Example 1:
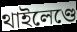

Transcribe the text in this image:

থাইলেণ্ডে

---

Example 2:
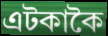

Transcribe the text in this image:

এটকাকৈ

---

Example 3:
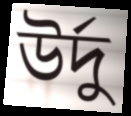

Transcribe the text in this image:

উৰ্দু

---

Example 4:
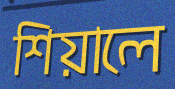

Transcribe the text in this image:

শিয়ালে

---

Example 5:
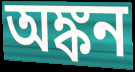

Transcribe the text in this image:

অঙ্কন